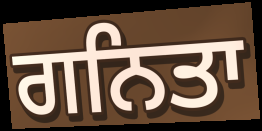
ਗਨਿਤਾ